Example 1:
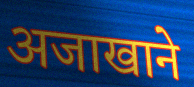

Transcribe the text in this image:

अजाखाने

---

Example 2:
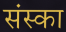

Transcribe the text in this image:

संस्का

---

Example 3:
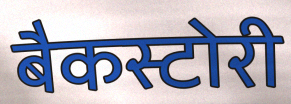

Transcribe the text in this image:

बैकस्टोरी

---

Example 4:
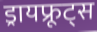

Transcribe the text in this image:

ड्रायफ्रूट्स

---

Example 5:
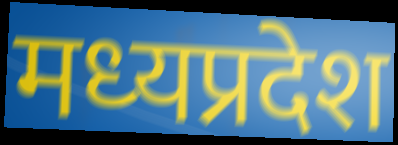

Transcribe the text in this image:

मध्‍यप्रदेश